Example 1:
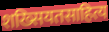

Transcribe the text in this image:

शख्सियतसाहित्य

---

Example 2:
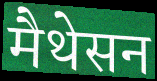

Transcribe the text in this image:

मैथेसन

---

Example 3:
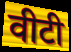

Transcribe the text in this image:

वीटी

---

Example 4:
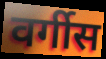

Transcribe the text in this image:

वर्गीस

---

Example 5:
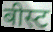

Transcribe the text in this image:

बीस्ट